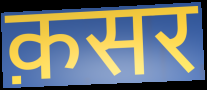
क़सर